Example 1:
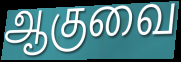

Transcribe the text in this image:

ஆகுவை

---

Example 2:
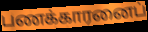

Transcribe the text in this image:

பணக்காரனைப்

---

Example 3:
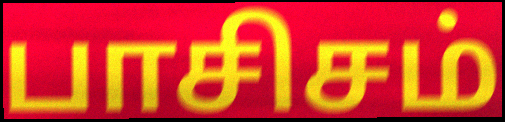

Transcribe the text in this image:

பாசிசம்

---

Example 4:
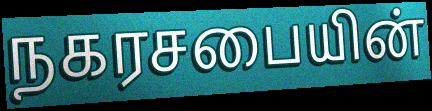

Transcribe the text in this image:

நகரசபையின்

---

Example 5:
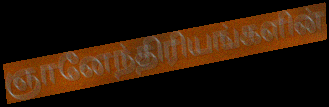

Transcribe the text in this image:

ஞானேந்திரியங்களின்